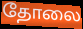
தோலை